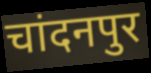
चांदनपुर